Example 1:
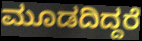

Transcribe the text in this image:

ಮೂಡದಿದ್ದರೆ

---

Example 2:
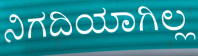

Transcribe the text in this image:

ನಿಗದಿಯಾಗಿಲ್ಲ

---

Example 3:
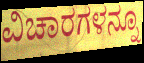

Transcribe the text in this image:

ವಿಚಾರಗಳನ್ನೂ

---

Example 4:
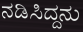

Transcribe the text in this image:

ನಡಿಸಿದ್ದನು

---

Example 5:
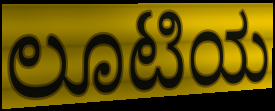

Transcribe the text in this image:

ಲೂಟಿಯ